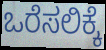
ಒರೆಸಲಿಕ್ಕೆ